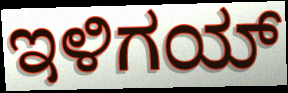
ಇಳಿಗಯ್